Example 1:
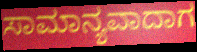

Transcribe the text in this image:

ಸಾಮಾನ್ಯವಾದಾಗ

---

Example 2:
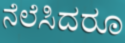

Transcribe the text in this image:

ನೆಲೆಸಿದರೂ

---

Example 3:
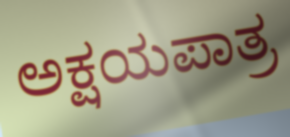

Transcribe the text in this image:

ಅಕ್ಷಯಪಾತ್ರ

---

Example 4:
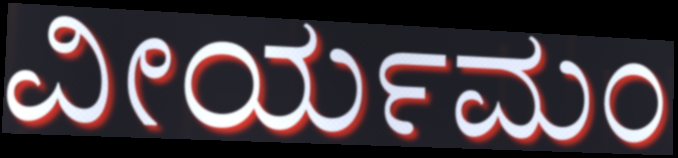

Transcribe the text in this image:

ವೀರ್ಯಮಂ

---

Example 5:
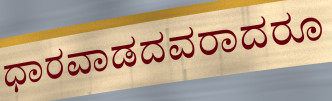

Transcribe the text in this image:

ಧಾರವಾಡದವರಾದರೂ